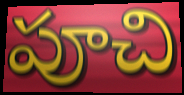
పూచి